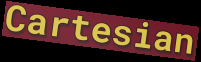
Cartesian